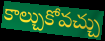
కాల్చుకోవచ్చు